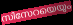
സിസേറയെയും